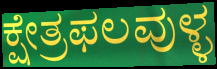
ಕ್ಷೇತ್ರಫಲವುಳ್ಳ